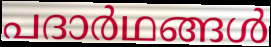
പദാർഥങ്ങൾ